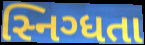
સ્નિગ્ધતા